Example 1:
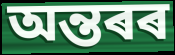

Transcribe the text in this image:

অন্তৰৰ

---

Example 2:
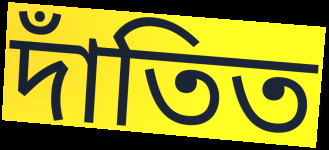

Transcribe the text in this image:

দাঁতিত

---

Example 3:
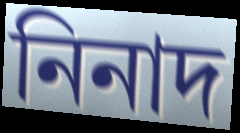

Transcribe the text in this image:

নিনাদ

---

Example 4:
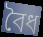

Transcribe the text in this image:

বৈধ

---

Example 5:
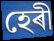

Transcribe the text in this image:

হেৰী